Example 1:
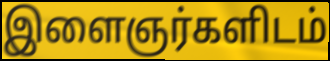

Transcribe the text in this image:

இளைஞர்களிடம்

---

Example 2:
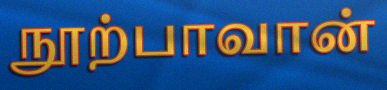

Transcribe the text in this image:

நூற்பாவான்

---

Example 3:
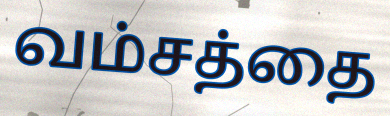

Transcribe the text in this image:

வம்சத்தை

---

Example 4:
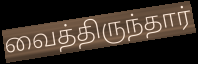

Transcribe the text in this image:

வைத்திருந்தார்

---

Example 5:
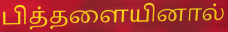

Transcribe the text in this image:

பித்தளையினால்